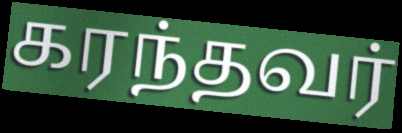
கரந்தவர்